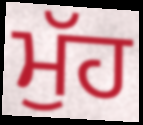
ਮੁੱਹ